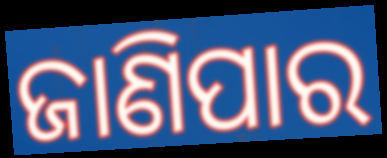
ଜାଣିପାର